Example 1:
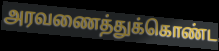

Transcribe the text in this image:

அரவணைத்துக்கொண்ட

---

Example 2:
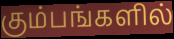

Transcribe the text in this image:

கும்பங்களில்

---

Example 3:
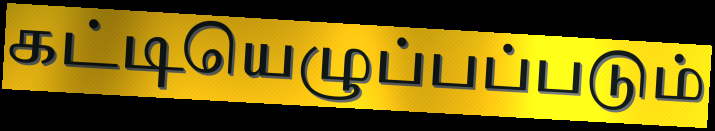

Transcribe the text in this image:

கட்டியெழுப்பப்படும்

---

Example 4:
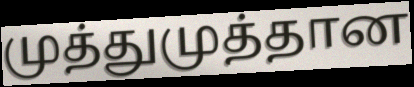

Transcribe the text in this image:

முத்துமுத்தான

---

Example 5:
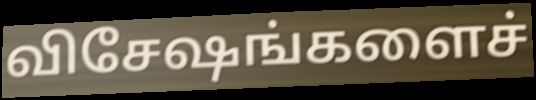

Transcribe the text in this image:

விசேஷங்களைச்